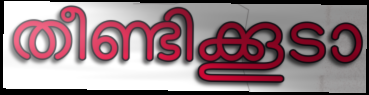
തീണ്ടിക്കൂടാ